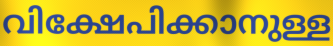
വിക്ഷേപിക്കാനുള്ള